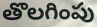
తొలగింపు